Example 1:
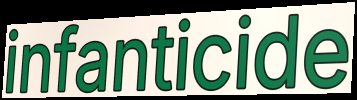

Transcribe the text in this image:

infanticide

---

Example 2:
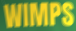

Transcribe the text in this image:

WIMPS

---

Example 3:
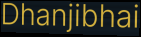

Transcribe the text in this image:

Dhanjibhai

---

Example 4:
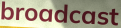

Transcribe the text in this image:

broadcast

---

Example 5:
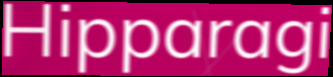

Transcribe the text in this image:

Hipparagi